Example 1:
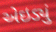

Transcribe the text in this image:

એઇડ્યું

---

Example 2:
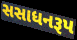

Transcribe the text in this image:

સસાધનરૂપ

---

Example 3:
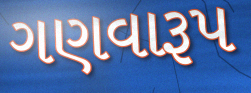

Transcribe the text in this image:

ગણવારૂપ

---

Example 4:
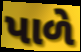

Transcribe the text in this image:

પાળે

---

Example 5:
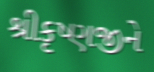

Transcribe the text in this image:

શ્રીકૃષ્ણજીને